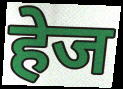
हेज